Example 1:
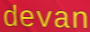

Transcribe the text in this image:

devan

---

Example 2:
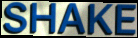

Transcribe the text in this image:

SHAKE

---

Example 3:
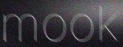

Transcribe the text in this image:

mook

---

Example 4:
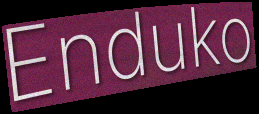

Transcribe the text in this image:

Enduko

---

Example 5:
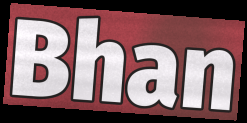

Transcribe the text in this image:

Bhan